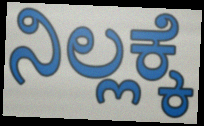
ನಿಲ್ಲಕ್ಕೆ